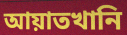
আয়াতখানি